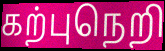
கற்புநெறி